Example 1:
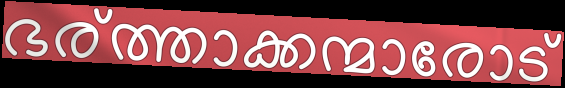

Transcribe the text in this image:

ഭര്ത്താക്കന്മാരോട്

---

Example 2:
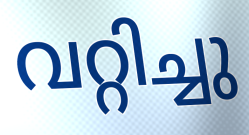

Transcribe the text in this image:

വറ്റിച്ചു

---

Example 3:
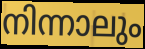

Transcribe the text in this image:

നിന്നാലും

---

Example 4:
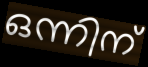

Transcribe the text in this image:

ഒന്നിന്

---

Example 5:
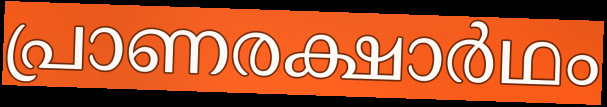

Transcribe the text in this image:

പ്രാണരക്ഷാർഥം